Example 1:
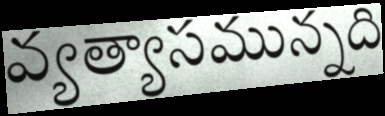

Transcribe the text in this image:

వ్యత్యాసమున్నది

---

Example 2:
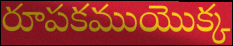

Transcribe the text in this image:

రూపకముయొక్క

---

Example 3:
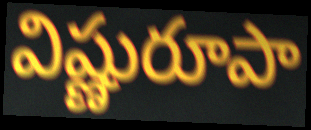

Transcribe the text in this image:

విష్ణురూపా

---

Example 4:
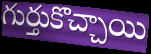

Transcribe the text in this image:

గుర్తుకొచ్చాయి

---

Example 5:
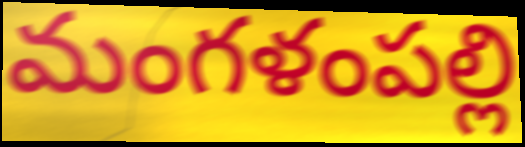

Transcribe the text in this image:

మంగళంపల్లి